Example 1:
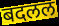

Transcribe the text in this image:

बदलल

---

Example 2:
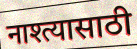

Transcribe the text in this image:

नाश्त्यासाठी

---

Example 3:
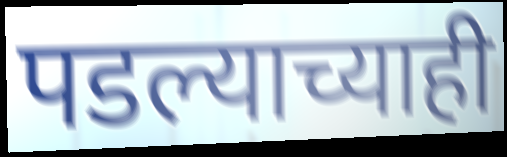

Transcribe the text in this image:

पडल्याच्याही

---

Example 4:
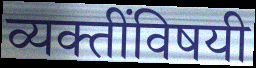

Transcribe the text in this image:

व्यक्तींविषयी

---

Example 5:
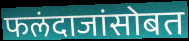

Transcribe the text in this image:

फलंदाजांसोबत